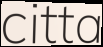
citta